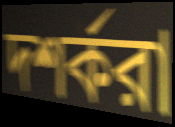
দশর্করা